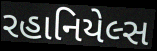
રહાનિયેલ્સ